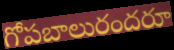
గోపబాలురందరూ